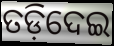
ତଡ଼ିଦେଇ